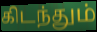
கிடந்தும்